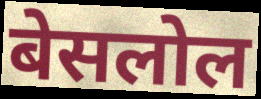
बेसलोल